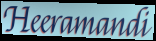
Heeramandi